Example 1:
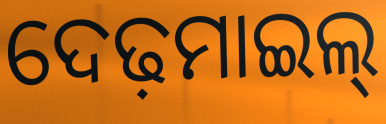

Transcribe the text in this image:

ଦେଢ଼ମାଇଲ୍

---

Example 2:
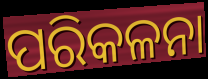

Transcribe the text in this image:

ପରିକଳନା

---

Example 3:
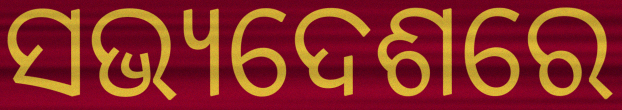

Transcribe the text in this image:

ସଭ୍ୟଦେଶରେ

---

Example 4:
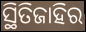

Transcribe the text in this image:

ସ୍ଥିତିଜାହିର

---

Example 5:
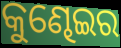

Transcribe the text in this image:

କୁଣ୍ଢେଇର